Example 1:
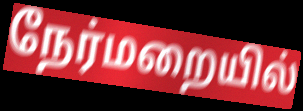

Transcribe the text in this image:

நேர்மறையில்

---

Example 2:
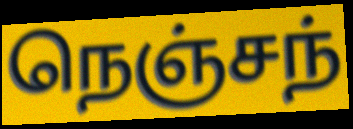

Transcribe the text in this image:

நெஞ்சந்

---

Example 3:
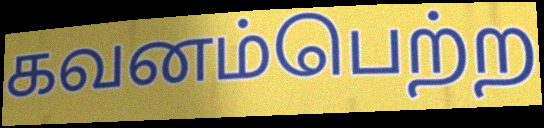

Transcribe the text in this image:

கவனம்பெற்ற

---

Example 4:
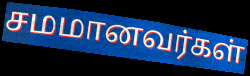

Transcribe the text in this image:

சமமானவர்கள்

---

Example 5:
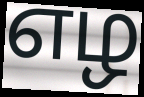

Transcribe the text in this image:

எழ